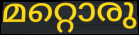
മറ്റൊരു